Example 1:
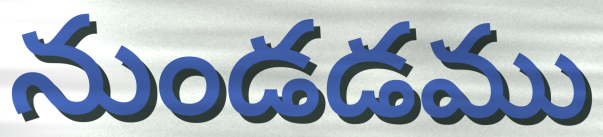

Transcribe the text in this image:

నుండడము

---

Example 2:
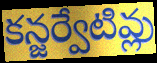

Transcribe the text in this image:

కన్జర్వేటివ్లు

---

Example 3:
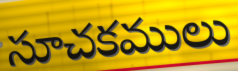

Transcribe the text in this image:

సూచకములు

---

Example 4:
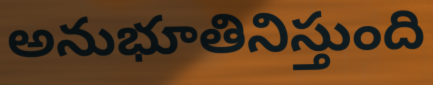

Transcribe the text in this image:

అనుభూతినిస్తుంది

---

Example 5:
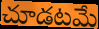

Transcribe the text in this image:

చూడటమే